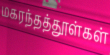
மகரந்தத்தூள்கள்